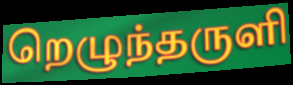
றெழுந்தருளி